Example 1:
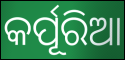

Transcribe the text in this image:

କର୍ପୂରିଆ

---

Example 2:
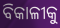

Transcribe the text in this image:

ବିକାଳୀକୁ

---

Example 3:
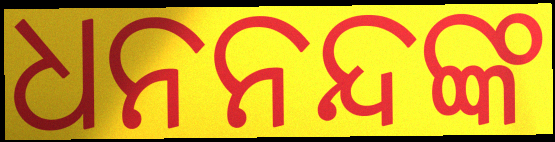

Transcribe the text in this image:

ଧନନନ୍ଦଙ୍କ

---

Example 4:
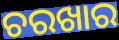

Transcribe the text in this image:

ଚରଖାର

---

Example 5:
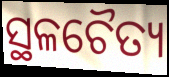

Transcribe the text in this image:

ସ୍ଥଳଚୈତ୍ୟ